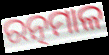
ରତ୍ନମାଳ